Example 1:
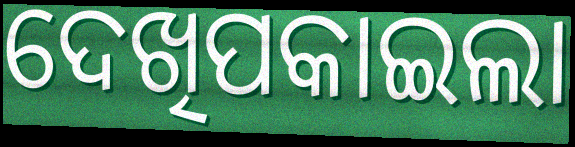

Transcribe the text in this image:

ଦେଖିପକାଇଲା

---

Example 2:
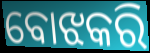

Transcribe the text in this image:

ବୋଝକରି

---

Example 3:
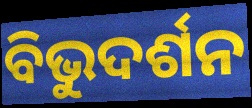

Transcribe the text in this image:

ବିଭୁଦର୍ଶନ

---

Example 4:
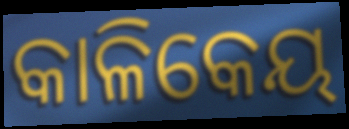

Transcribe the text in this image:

କାଳିକେୟ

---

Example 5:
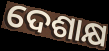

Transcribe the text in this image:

ଦେଶାକ୍ଷ